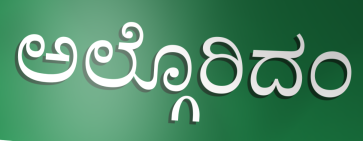
ಅಲ್ಗೊರಿದಂ